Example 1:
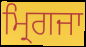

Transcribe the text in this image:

ਮ੍ਰਿਗਜਾ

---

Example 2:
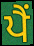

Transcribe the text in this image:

ਪੈਂ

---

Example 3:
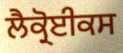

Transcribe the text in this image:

ਲੈਕ੍ਰੋਈਕਸ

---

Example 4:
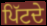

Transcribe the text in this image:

ਪਿੱਟਦੇ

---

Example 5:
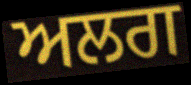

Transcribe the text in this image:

ਅਲਗ